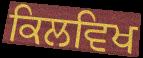
ਕਿਲਵਿਖ